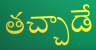
తచ్చాడే